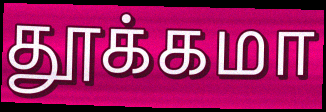
தூக்கமா